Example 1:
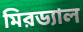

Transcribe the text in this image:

মিরড্যাল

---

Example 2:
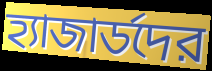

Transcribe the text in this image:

হ্যাজার্ডদের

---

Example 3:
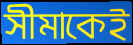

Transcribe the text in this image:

সীমাকেই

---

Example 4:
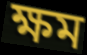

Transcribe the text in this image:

ক্ষম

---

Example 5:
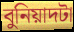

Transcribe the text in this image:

বুনিয়াদটা